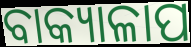
ବାକ୍ୟାଳାପ